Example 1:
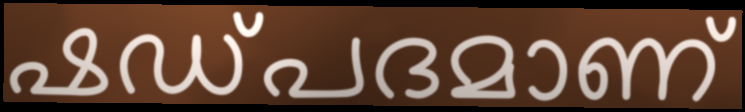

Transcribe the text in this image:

ഷഡ്പദമാണ്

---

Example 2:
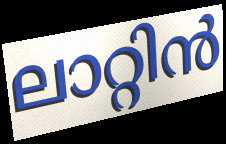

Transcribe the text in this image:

ലാറ്റിൻ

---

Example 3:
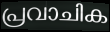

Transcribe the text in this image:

പ്രവാചിക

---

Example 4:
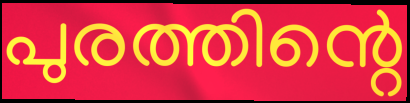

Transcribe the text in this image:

പുരത്തിന്റെ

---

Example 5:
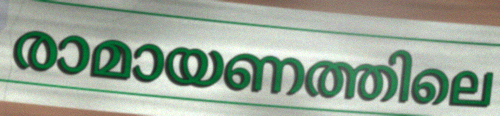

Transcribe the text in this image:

രാമായണത്തിലെ